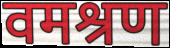
वमश्रण